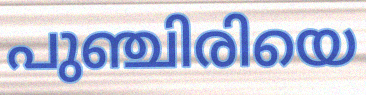
പുഞ്ചിരിയെ